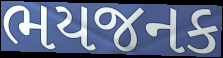
ભયજનક